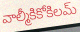
వాల్మీకికోకిలమ్